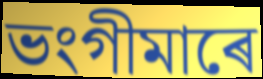
ভংগীমাৰে